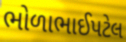
ભોળાભાઈપટેલ